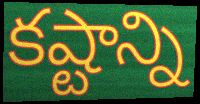
కష్టాన్ని